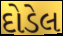
દોડેલ